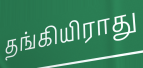
தங்கியிராது